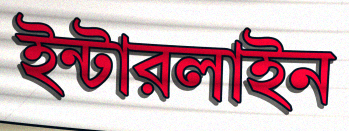
ইন্টারলাইন